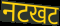
नटखट